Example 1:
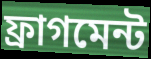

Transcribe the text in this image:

ফ্ৰাগমেন্ট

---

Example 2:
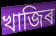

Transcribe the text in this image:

খাজিৰ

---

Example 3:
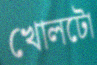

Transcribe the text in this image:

খোলটো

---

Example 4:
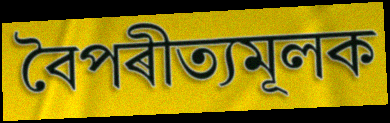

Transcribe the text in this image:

বৈপৰীত্যমূলক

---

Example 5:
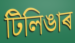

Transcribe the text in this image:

টিলিঙাৰ